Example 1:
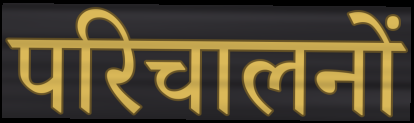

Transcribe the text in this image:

परिचालनों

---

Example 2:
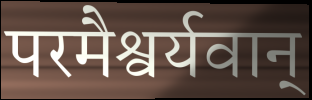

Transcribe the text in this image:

परमैश्वर्यवान्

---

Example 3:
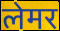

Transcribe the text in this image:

लेमर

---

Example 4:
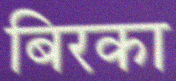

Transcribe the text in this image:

बिरका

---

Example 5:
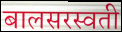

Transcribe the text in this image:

बालसरस्वती